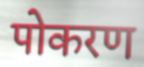
पोकरण